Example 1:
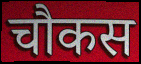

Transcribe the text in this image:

चौकस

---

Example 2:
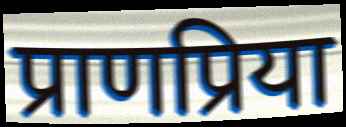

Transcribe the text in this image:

प्राणप्रिया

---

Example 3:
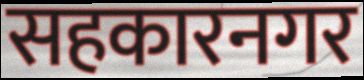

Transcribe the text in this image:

सहकारनगर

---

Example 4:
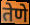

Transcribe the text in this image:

तेणे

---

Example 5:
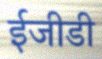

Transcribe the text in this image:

ईजीडी